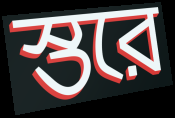
স্তরে